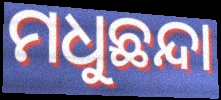
ମଧୁଛନ୍ଦା